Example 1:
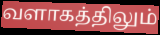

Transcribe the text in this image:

வளாகத்திலும்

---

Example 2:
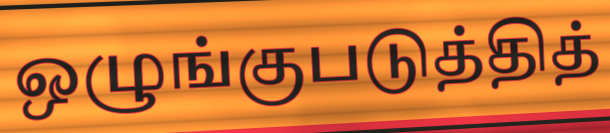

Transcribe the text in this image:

ஒழுங்குபடுத்தித்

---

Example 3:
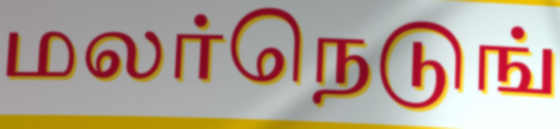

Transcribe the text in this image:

மலர்நெடுங்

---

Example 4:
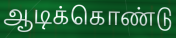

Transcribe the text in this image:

ஆடிக்கொண்டு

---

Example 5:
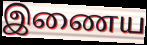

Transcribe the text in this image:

இணைய